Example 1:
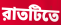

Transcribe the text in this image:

রাতটিতে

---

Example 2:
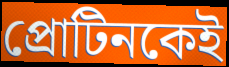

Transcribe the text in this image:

প্রোটিনকেই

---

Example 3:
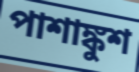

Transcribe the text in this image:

পাশাঙ্কুশ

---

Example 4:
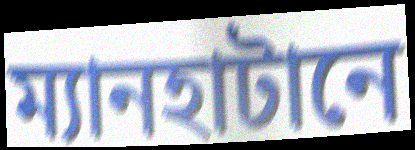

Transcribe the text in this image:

ম্যানহাটানে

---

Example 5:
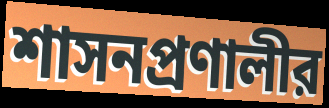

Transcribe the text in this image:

শাসনপ্রণালীর